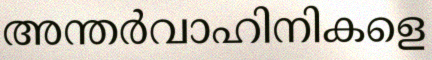
അന്തർവാഹിനികളെ